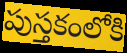
పుస్తకంలోకి